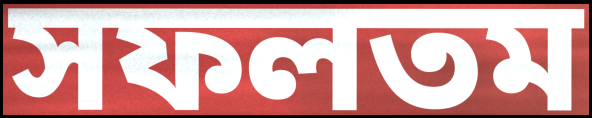
সফলতম